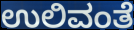
ಉಲಿವಂತೆ